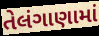
તેલંગાણામાં